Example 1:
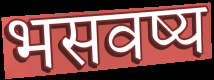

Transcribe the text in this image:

भसवष्य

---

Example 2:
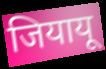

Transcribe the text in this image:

जियायू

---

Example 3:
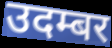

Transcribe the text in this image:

उदम्बर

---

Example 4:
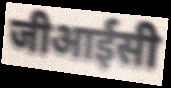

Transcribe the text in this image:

जीआईसी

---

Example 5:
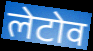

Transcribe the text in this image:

लेटोव